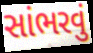
સાંભરવું